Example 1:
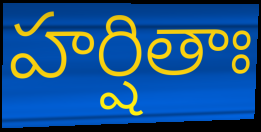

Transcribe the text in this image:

హర్షితాః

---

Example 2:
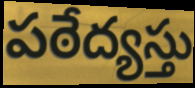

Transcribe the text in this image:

పఠేద్యస్తు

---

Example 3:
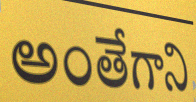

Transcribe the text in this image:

అంతేగాని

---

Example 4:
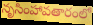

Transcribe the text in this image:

నృసింహావతారంలో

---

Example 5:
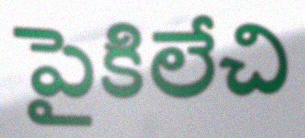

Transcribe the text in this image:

పైకిలేచి